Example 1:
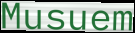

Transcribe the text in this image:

Musuem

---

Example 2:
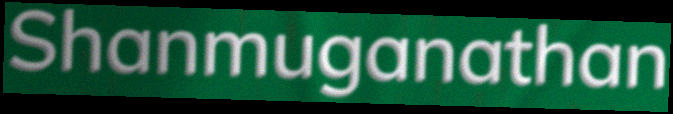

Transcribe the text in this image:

Shanmuganathan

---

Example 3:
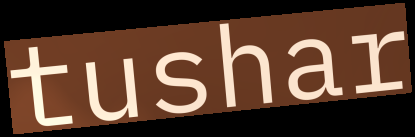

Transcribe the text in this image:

tushar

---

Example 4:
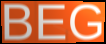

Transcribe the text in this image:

BEG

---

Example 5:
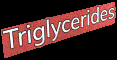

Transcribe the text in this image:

Triglycerides